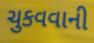
ચુકવવાની